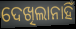
ଦେଖିଲାନାହିଁ